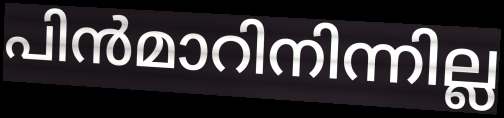
പിൻമാറിനിന്നില്ല